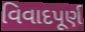
વિવાદપૂર્ણ